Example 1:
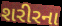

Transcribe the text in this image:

શરીરના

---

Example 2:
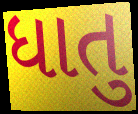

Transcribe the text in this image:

ધાતુ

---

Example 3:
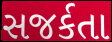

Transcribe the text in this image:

સજર્કતા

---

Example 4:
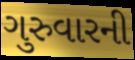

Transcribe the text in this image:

ગુરુવારની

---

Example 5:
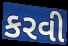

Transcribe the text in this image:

કરવી